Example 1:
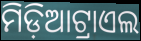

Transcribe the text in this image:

ମିଡ଼ିଆଟ୍ରାଏଲ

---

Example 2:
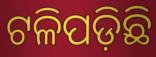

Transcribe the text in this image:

ଟଳିପଡ଼ିଛି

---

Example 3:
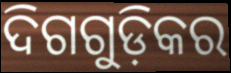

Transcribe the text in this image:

ଦିଗଗୁଡ଼ିକର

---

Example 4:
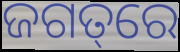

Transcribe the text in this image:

ଜଗତ୍‌ରେ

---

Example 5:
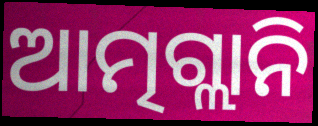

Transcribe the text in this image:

ଆତ୍ମଗ୍ଲାନି